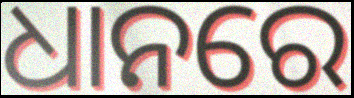
ଧାନରେ